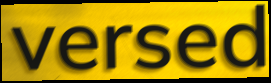
versed